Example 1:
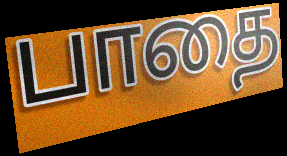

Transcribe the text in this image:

பாதை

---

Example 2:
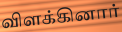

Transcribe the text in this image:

விளக்கினார்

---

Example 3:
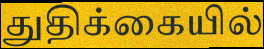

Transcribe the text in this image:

துதிக்கையில்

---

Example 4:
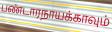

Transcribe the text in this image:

பண்டாரநாயக்காவும்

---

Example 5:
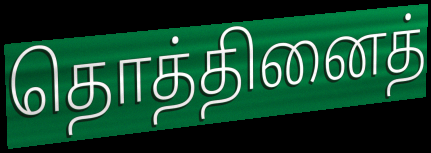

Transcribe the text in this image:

தொத்தினைத்